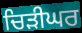
ਚਿੜੀਘਰ